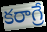
కరాగ్రే